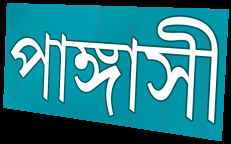
পাঙ্গাসী